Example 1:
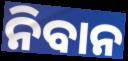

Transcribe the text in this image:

ନିବାନ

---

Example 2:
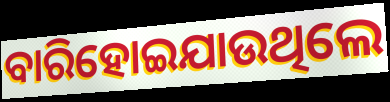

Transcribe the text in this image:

ବାରିହୋଇଯାଉଥିଲେ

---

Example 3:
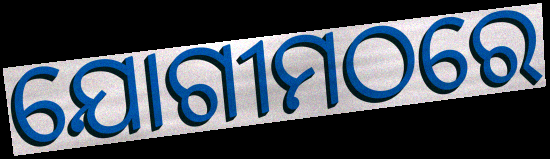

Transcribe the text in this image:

ଯୋଗୀମଠରେ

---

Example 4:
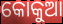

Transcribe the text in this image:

କୋକୁଆ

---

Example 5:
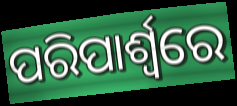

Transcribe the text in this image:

ପରିପାର୍ଶ୍ୱରେ